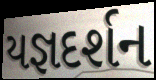
યજ્ઞદર્શન